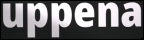
uppena